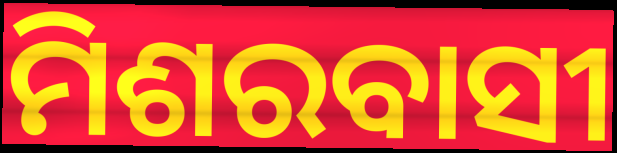
ମିଶରବାସୀ